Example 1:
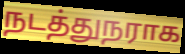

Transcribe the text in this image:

நடத்துநராக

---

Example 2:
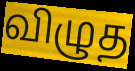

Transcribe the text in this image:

விழுத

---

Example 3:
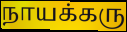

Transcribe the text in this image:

நாயக்கரு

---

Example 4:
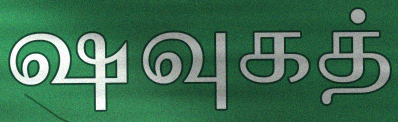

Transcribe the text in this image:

ஷவுகத்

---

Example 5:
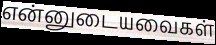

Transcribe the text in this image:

என்னுடையவைகள்